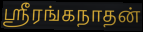
ஸ்ரீரங்கநாதன்